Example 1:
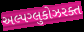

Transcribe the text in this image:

અલ્પગ્લુકોઝરક્ત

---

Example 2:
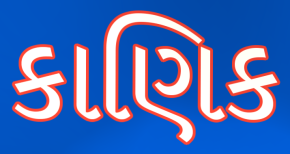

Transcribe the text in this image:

કાણિક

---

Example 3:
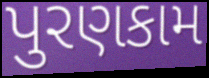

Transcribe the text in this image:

પુરણકામ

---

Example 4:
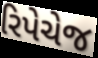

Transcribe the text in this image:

રિપેચેજ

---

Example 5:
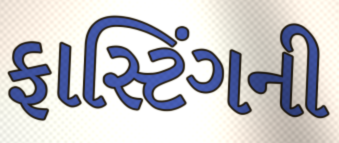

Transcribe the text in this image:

ફાસ્ટિંગની